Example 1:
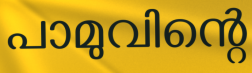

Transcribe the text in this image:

പാമുവിന്റെ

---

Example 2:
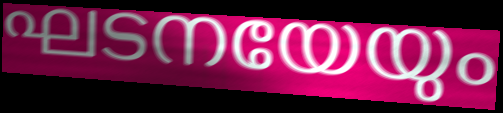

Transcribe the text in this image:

ഘടനയേയും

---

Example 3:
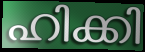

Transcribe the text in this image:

ഹിക്കി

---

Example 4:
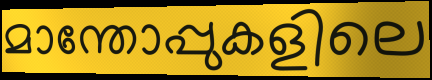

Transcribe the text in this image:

മാന്തോപ്പുകളിലെ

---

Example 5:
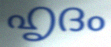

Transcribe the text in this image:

ഹൃദം